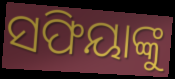
ସଫିୟାଙ୍କୁ